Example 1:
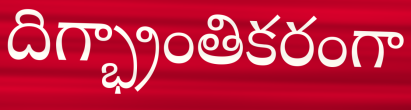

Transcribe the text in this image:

దిగ్భ్రాంతికరంగా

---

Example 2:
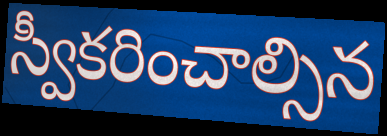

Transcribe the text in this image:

స్వీకరించాల్సిన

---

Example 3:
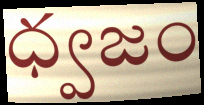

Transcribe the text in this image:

ధ్వజం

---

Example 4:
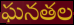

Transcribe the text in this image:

ఘనతల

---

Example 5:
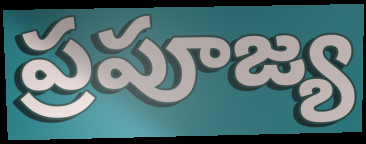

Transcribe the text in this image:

ప్రపూజ్య